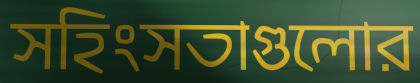
সহিংসতাগুলোর